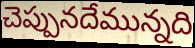
చెప్పునదేమున్నది